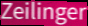
Zeilinger